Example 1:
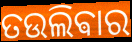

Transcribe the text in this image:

ତଉଲିଵାର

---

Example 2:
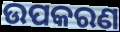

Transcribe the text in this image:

ଉପକରଣ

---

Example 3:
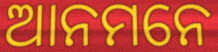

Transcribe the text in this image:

ଆନମନେ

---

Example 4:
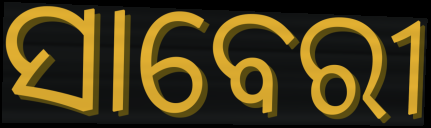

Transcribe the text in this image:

ସାବେରୀ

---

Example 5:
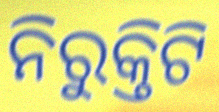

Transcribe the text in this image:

ନିରୁକ୍ତିଟି